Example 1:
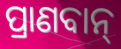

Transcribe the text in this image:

ପ୍ରାଣବାନ୍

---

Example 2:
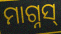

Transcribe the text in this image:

ମାଗ୍ନସ୍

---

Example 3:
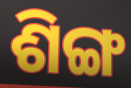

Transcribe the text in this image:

ଶିଙ୍ଗ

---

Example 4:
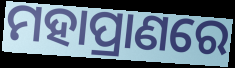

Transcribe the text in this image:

ମହାପ୍ରାଣରେ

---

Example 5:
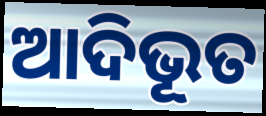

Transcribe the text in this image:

ଆଦିଭୂତ